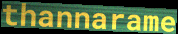
thannarame